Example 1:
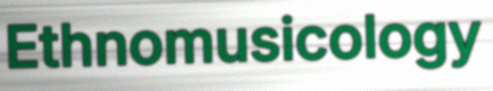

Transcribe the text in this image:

Ethnomusicology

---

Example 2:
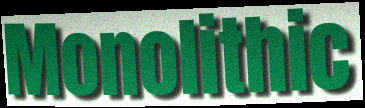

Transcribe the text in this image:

Monolithic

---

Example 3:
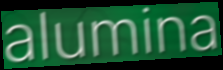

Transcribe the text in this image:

alumina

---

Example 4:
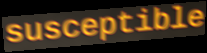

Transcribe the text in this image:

susceptible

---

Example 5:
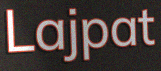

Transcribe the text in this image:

Lajpat